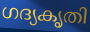
ഗദ്യകൃതി